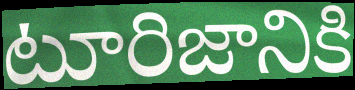
టూరిజానికి